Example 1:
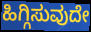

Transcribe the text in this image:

ಹಿಗ್ಗಿಸುವುದೇ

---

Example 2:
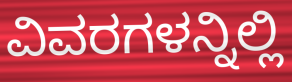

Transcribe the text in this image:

ವಿವರಗಳನ್ನಿಲ್ಲಿ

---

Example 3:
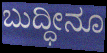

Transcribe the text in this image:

ಬುದ್ಧೀನೂ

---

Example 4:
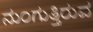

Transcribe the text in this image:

ನುಂಗುತ್ತಿರುವ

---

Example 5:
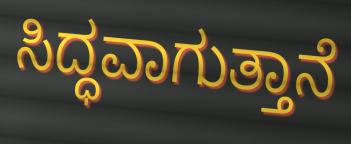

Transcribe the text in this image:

ಸಿದ್ಧವಾಗುತ್ತಾನೆ